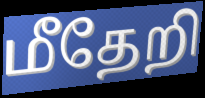
மீதேறி